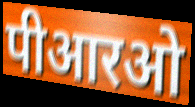
पीआरओ